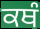
ਕਥੰ